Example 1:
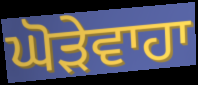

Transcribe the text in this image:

ਘੋੜੇਵਾਹਾ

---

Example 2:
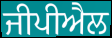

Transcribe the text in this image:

ਜੀਪੀਐਲ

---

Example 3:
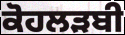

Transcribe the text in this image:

ਕੋਹਲੜਬੀ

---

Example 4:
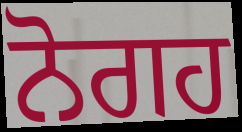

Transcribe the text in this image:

ਨੋਗਹ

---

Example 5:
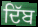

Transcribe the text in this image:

ਦਿੱਬ